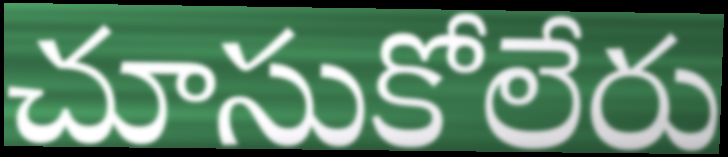
చూసుకోలేరు